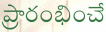
ప్రారంభించే